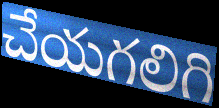
చేయగలిగి